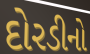
દોરડીનો